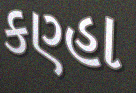
કણ્હા